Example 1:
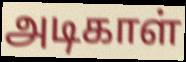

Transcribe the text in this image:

அடிகாள்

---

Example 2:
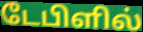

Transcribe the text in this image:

டேபிளில்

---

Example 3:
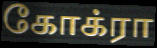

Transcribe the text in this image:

கோக்ரா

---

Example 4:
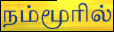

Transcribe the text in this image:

நம்மூரில்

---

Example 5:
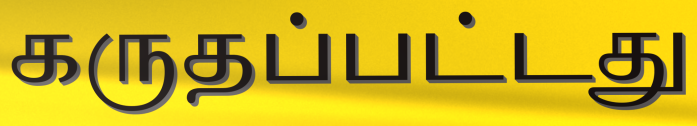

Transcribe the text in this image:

கருதப்பட்டது